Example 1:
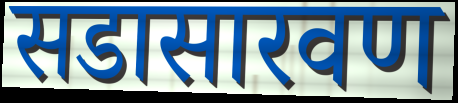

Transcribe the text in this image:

सडासारवण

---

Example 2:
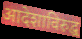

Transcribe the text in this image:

आदेशाविरुद्ध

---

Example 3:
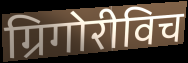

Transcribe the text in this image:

ग्रिगोरीविच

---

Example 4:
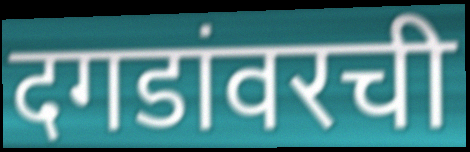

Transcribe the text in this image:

दगडांवरची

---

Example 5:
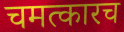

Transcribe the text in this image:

चमत्कारच